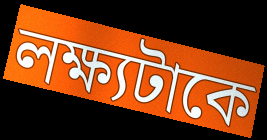
লক্ষ্যটাকে